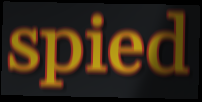
spied